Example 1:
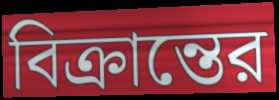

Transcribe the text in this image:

বিক্রান্তের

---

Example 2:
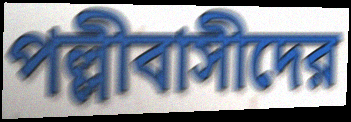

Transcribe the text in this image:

পল্লীবাসীদের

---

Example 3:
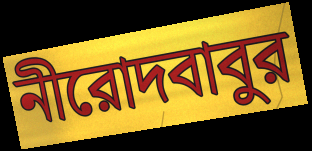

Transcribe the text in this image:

নীরোদবাবুর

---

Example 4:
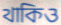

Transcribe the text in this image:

থাকিও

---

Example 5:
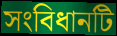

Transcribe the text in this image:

সংবিধানটি